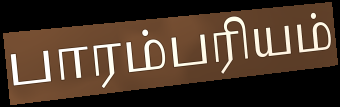
பாரம்பரியம்